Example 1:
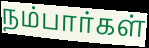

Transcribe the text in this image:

நம்பார்கள்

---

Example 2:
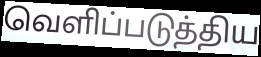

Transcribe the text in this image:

வெளிப்படுத்திய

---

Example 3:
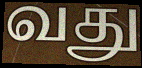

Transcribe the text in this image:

வது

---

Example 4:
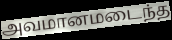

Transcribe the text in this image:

அவமானமடைந்த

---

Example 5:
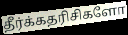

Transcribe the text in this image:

தீர்க்கதரிசிகளோ